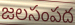
జలసంపద